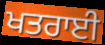
ਖਤਰਾਈ